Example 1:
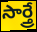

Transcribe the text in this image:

సార్త్రే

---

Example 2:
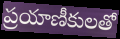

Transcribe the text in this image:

ప్రయాణీకులతో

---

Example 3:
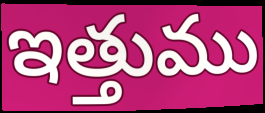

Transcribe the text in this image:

ఇత్తుము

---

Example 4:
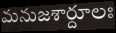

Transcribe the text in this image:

మనుజశార్దూలః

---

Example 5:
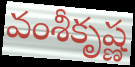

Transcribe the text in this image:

వంశీకృష్ణ